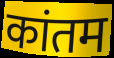
कांतम